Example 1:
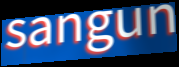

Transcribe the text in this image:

sangun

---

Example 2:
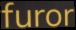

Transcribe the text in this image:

furor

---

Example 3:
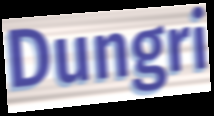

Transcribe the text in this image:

Dungri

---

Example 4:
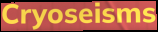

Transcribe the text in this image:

Cryoseisms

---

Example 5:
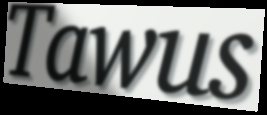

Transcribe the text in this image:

Tawus